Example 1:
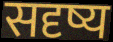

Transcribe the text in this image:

सदृष्य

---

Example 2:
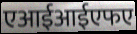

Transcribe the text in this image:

एआईआईएफए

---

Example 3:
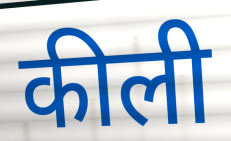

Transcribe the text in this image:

कीली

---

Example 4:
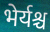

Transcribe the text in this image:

भेर्यश्च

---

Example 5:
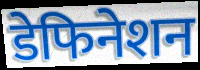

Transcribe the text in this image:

डेफिनेशन